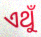
ଏଥୁଁ